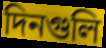
দিনগুলি